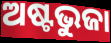
ଅଷ୍ଟଭୁଜା